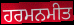
ਹਰਮਨਮੀਤ